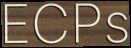
ECPs